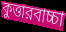
কুত্তারবাচ্চা